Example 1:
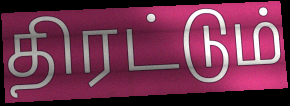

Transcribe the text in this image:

திரட்டும்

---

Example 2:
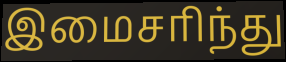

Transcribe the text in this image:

இமைசரிந்து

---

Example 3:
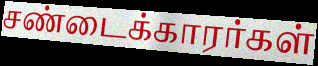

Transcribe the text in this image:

சண்டைக்காரர்கள்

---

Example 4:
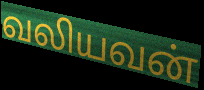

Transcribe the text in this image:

வலியவன்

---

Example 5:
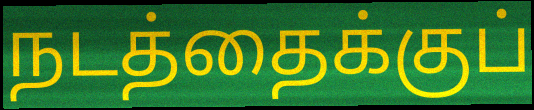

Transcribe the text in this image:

நடத்தைக்குப்